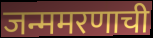
जन्ममरणाची